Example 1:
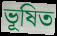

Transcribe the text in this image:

ভূষিত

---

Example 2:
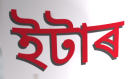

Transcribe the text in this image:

ইটাৰ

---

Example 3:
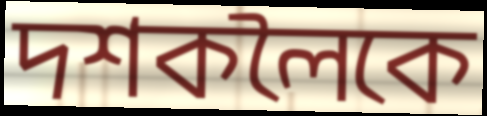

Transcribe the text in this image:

দশকলৈকে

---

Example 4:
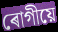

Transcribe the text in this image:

ৰোগীয়ে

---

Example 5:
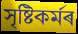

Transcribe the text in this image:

সৃষ্টিকৰ্মৰ